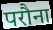
परौना